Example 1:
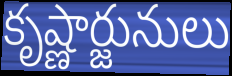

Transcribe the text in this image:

కృష్ణార్జునులు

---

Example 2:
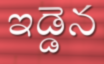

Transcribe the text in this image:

ఇడ్డెన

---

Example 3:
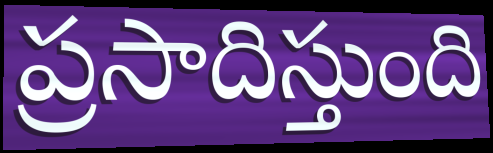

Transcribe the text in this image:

ప్రసాదిస్తుంది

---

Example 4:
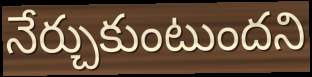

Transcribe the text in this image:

నేర్చుకుంటుందని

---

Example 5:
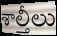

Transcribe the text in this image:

శాల్తీలు